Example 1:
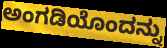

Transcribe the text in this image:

ಅಂಗಡಿಯೊಂದನ್ನು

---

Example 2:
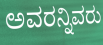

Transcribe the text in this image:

ಅವರನ್ನಿವರು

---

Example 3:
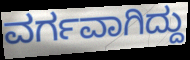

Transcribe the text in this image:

ವರ್ಗವಾಗಿದ್ದು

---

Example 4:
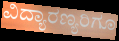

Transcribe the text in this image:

ವಿದ್ಯಾರಣ್ಯರಿಗೂ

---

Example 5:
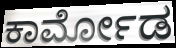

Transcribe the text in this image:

ಕಾರ್ಮೋಡ